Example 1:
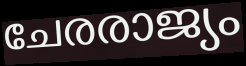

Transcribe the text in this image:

ചേരരാജ്യം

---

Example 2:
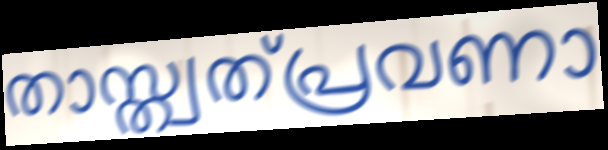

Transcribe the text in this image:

താസ്ത്വത്പ്രവണാ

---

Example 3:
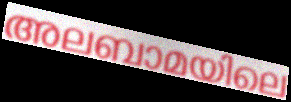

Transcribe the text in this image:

അലബാമയിലെ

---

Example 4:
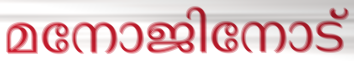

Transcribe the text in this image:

മനോജിനോട്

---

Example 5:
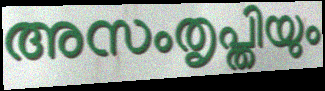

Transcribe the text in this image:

അസംതൃപ്തിയും